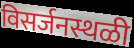
विसर्जनस्थळी